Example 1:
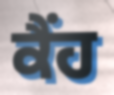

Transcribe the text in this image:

ਕੈਂਹ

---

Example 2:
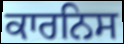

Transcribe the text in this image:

ਕਾਰਨਿਸ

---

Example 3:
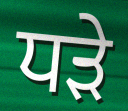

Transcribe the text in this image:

ਧੜੇ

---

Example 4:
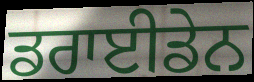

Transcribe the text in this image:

ਡਰਾਈਡੇਨ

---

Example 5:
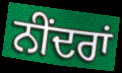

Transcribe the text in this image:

ਨੀਂਦਰਾਂ